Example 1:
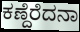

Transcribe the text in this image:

ಕಣ್ದೆರೆದನಾ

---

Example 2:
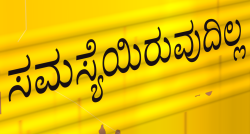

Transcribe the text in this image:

ಸಮಸ್ಯೆಯಿರುವುದಿಲ್ಲ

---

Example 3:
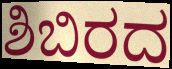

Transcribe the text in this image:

ಶಿಬಿರದ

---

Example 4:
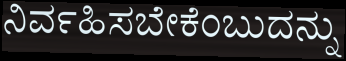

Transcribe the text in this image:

ನಿರ್ವಹಿಸಬೇಕೆಂಬುದನ್ನು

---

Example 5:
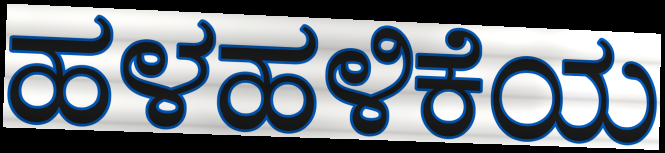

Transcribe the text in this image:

ಹಳಹಳಿಕೆಯ